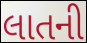
લાતની